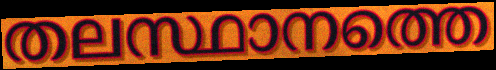
തലസ്ഥാനത്തെ